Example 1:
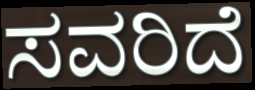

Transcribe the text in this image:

ಸವರಿದೆ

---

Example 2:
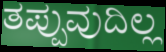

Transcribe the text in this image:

ತಪ್ಪುವುದಿಲ್ಲ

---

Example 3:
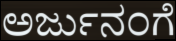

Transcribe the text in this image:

ಅರ್ಜುನಂಗೆ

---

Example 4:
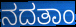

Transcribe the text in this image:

ನದತಾಂ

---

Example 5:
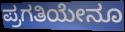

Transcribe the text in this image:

ಪ್ರಗತಿಯೇನೂ